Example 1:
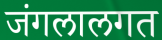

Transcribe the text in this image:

जंगलालगत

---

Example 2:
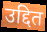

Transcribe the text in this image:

उद्दित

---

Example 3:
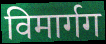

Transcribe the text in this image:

विमार्गग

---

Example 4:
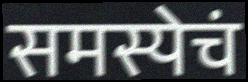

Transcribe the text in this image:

समस्येचं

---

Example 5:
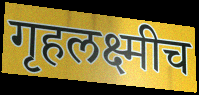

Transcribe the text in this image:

गृहलक्ष्मीच